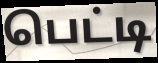
பெட்டி